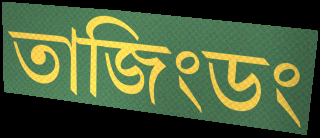
তাজিংডং